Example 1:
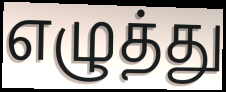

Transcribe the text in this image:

எழுத்து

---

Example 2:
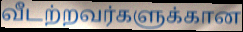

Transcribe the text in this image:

வீடற்றவர்களுக்கான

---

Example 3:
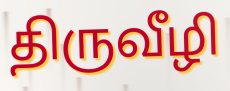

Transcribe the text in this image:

திருவீழி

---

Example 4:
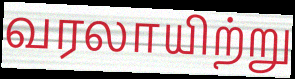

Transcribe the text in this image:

வரலாயிற்று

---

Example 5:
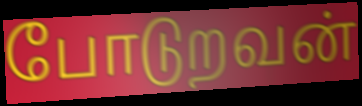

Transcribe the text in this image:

போடுறவன்